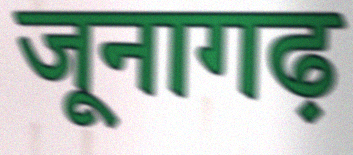
जूनागढ़